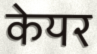
केयर